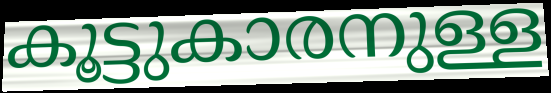
കൂട്ടുകാരനുള്ള